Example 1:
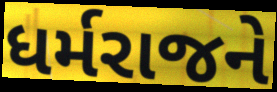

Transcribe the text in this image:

ધર્મરાજને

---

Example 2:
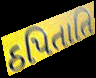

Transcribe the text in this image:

ઠપિતાતિ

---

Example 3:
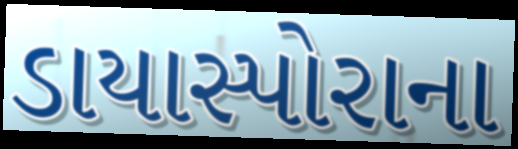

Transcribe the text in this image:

ડાયાસ્પોરાના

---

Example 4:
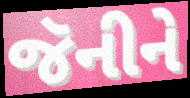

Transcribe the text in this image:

જૅનીને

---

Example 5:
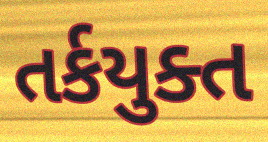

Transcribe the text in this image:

તર્કયુક્ત